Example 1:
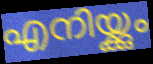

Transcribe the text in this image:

എനിയ്ക്കും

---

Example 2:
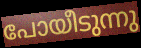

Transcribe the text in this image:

പോയീടുന്നു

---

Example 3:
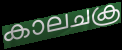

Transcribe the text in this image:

കാലചക്ര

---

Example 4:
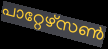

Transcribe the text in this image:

പാറ്റേഴ്സൺ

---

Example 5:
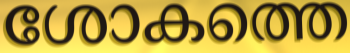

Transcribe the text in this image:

ശോകത്തെ